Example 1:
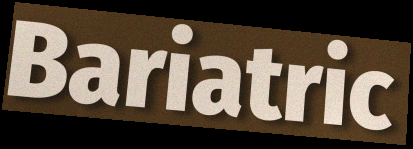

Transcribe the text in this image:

Bariatric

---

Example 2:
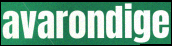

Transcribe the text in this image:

avarondige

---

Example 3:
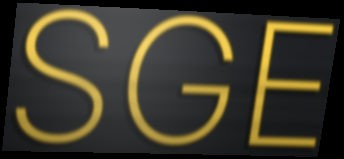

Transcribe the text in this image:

SGE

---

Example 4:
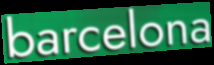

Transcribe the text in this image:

barcelona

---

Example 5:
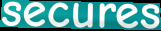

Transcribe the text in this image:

secures